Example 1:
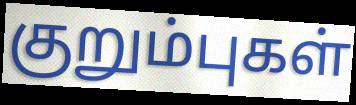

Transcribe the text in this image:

குறும்புகள்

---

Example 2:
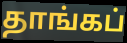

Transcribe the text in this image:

தாங்கப்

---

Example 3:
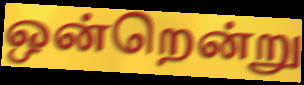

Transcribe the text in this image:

ஒன்றென்று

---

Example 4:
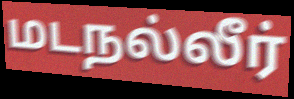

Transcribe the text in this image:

மடநல்லீர்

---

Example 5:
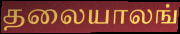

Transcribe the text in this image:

தலையாலங்